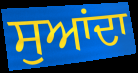
ਸੁਆਂਦਾ